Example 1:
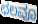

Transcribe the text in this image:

ಛಲವೂ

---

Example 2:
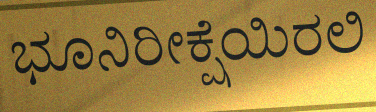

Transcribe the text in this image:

ಭೂನಿರೀಕ್ಷೆಯಿರಲಿ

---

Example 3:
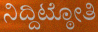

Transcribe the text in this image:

ನಿದ್ದಿಟ್ಠೋತಿ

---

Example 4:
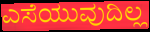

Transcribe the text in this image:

ಎಸೆಯುವುದಿಲ್ಲ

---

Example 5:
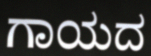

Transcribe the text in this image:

ಗಾಯದ